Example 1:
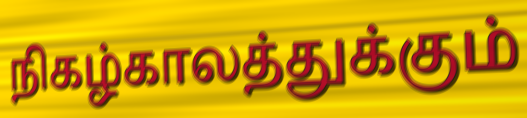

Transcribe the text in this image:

நிகழ்காலத்துக்கும்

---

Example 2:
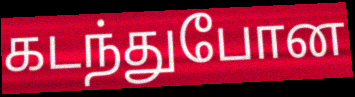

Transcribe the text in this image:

கடந்துபோன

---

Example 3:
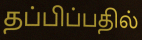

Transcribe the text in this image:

தப்பிப்பதில்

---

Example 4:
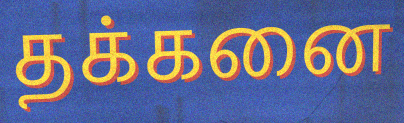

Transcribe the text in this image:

தக்கனை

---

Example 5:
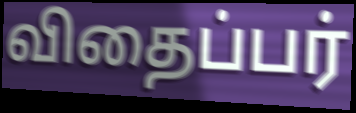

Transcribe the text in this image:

விதைப்பர்